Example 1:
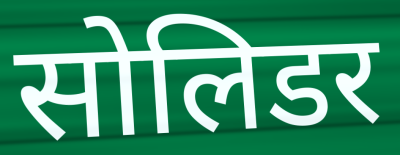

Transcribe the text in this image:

सोलिडर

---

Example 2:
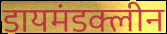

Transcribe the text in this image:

डायमंडक्लीन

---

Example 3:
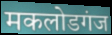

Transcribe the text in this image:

मकलोडगंज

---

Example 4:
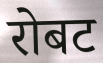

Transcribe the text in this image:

रोबट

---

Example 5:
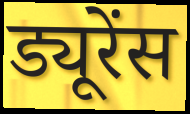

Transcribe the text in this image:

ड्यूरेंस